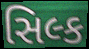
સિલ્ક